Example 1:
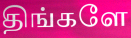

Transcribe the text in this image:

திங்களே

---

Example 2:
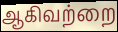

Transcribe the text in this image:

ஆகிவற்றை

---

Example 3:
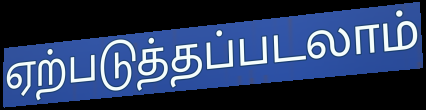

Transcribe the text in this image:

ஏற்படுத்தப்படலாம்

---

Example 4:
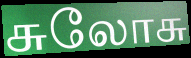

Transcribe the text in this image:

சுலோசு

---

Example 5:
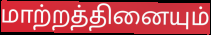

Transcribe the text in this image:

மாற்றத்தினையும்